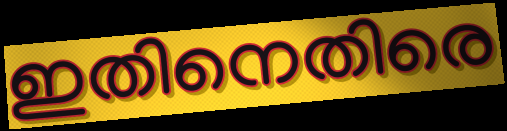
ഇതിനെതിരെ